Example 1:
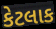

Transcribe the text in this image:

કેટલાક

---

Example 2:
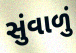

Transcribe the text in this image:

સુંવાળું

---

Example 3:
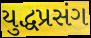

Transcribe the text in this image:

યુદ્ધપ્રસંગ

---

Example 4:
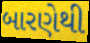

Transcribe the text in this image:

બારણેથી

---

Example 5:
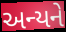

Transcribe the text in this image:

અન્યને